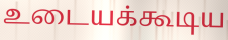
உடையக்கூடிய